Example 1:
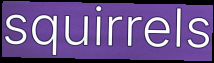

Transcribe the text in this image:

squirrels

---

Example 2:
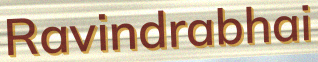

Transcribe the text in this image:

Ravindrabhai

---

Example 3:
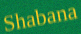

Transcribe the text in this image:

Shabana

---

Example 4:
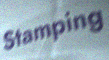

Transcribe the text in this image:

Stamping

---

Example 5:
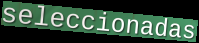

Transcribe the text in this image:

seleccionadas